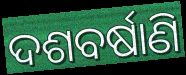
ଦଶବର୍ଷାଣି